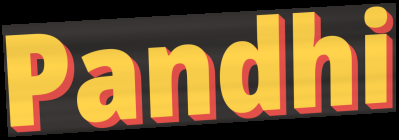
Pandhi